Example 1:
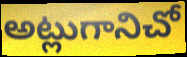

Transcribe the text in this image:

అట్లుగానిచో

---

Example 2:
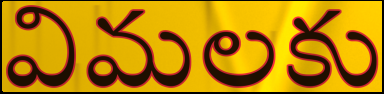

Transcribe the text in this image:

విమలకు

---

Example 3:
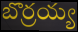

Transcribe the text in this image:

బొర్రయ్య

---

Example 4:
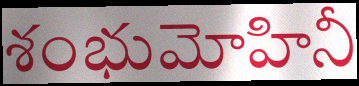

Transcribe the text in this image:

శంభుమోహినీ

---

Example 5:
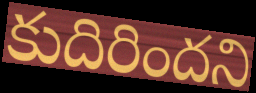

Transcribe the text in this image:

కుదిరిందని